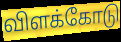
விளக்கோடு